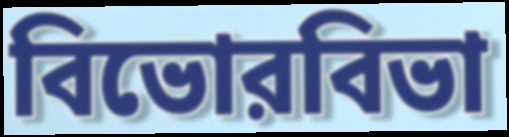
বিভোরবিভা